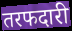
तरफदारी